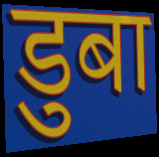
डुबा